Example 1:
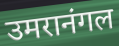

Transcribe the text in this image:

उमरानंगल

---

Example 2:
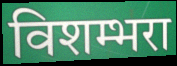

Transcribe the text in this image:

विशम्भरा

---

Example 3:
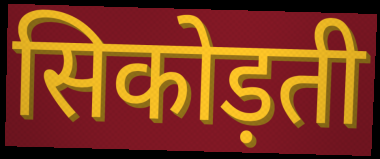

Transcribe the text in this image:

सिकोड़ती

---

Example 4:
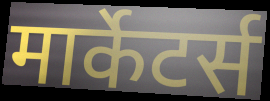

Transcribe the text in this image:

मार्केटर्स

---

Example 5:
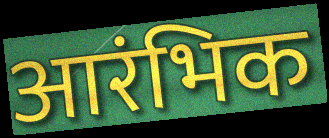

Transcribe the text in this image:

आरंभिक